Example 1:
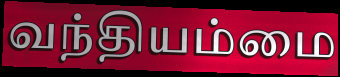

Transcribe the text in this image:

வந்தியம்மை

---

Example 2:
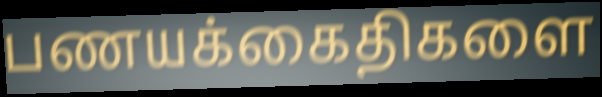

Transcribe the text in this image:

பணயக்கைதிகளை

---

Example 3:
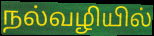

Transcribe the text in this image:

நல்வழியில்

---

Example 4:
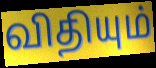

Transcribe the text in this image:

விதியும்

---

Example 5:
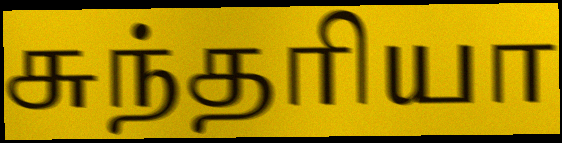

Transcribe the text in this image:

சுந்தரியா